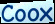
Coox